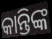
କାନ୍ତିଙ୍କ